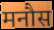
मनौस